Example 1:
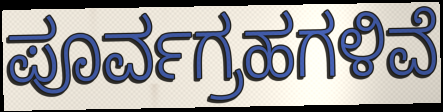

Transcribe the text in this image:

ಪೂರ್ವಗ್ರಹಗಳಿವೆ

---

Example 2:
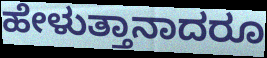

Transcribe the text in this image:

ಹೇಳುತ್ತಾನಾದರೂ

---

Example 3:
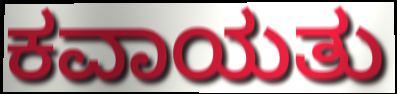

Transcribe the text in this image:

ಕವಾಯತು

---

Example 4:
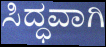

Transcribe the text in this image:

ಸಿದ್ಧವಾಗಿ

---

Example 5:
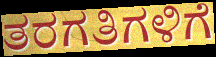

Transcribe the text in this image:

ತರಗತಿಗಳಿಗೆ